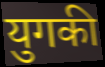
युगकी